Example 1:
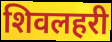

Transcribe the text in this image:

शिवलहरी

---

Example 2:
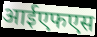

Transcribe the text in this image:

आईएफएस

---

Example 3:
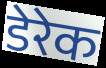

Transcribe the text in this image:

डेरेक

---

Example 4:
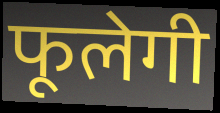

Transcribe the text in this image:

फूलेगी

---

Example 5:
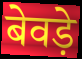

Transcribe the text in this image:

बेवड़े